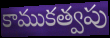
కాముకత్వపు